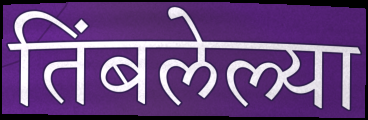
तिंबलेल्या